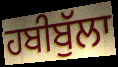
ਹਬੀਬੁੱਲਾ